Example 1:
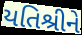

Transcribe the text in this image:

યતિશ્રીને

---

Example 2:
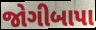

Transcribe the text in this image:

જોગીબાપા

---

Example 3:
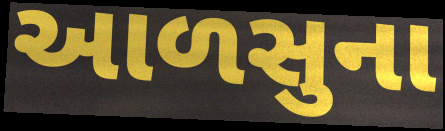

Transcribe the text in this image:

આળસુના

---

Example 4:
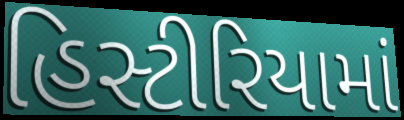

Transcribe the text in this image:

હિસ્ટીરિયામાં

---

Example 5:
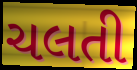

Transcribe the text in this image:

ચલતી